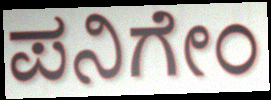
ಪನಿಗೇಂ